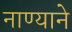
नाण्याने